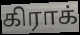
கிராக்